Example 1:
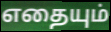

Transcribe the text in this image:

எதையும்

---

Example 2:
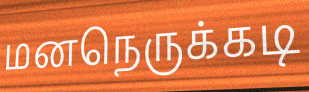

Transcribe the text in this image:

மனநெருக்கடி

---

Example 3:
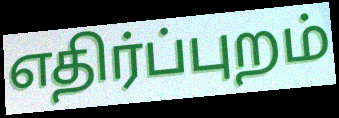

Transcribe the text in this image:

எதிர்ப்புறம்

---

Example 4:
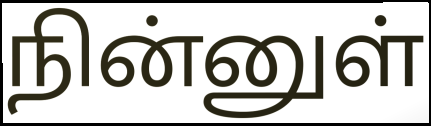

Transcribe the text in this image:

நின்னுள்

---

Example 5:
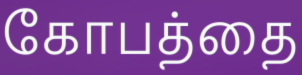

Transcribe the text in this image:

கோபத்தை